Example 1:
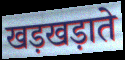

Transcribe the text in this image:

खड़खड़ाते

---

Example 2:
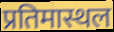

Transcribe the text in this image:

प्रतिमास्थल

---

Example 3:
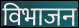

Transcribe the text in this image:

विभाजन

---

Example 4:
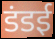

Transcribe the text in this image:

डंडई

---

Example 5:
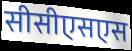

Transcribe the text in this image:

सीसीएसएस